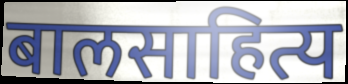
बालसाहित्य